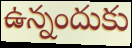
ఉన్నందుకు